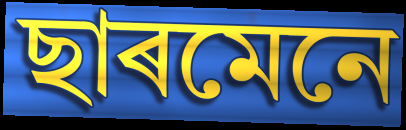
ছাৰমেনে